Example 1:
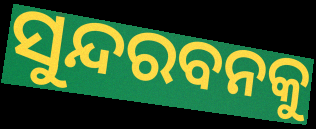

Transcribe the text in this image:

ସୁନ୍ଦରବନକୁ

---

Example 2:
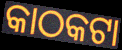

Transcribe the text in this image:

କାଠକଟା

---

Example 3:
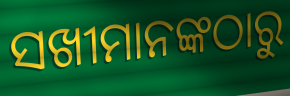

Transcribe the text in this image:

ସଖୀମାନଙ୍କଠାରୁ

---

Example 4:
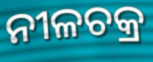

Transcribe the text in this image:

ନୀଳଚକ୍ର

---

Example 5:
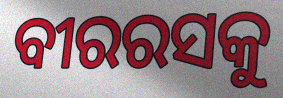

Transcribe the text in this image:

ବୀରରସକୁ